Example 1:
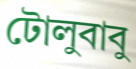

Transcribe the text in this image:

টোলুবাবু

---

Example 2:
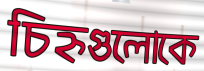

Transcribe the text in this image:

চিহ্নগুলোকে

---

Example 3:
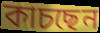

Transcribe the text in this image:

কাচছেন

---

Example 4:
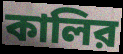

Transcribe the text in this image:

কালির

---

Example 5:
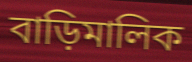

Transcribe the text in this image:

বাড়িমালিক